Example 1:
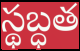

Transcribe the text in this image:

స్థబ్ధత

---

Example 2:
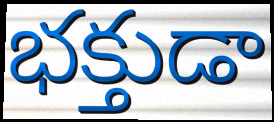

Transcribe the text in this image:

భక్తుడా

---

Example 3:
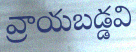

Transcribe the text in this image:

వ్రాయబడ్డవి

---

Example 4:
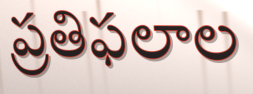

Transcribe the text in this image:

ప్రతిఫలాల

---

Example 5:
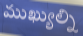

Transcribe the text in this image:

ముఖ్యుల్ని